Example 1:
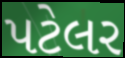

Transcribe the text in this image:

પટેલર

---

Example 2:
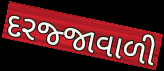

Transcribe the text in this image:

દરજ્જાવાળી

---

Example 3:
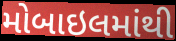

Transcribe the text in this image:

મોબાઇલમાંથી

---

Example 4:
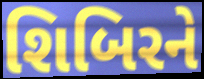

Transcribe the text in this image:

શિબિરને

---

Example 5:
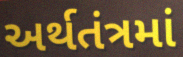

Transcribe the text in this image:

અર્થતંત્રમાં